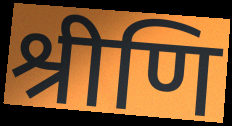
श्रीणि